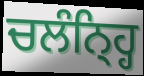
ਚਲੰਨ੍ਹ੍ਹਿ